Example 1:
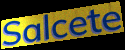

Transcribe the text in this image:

Salcete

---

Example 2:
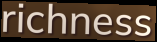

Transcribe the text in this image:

richness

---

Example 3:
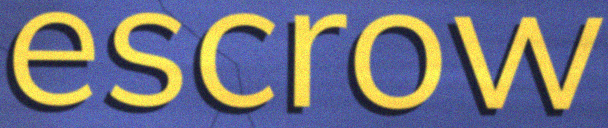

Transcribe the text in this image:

escrow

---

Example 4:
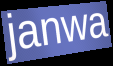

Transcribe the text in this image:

janwa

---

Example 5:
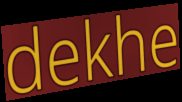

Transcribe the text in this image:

dekhe